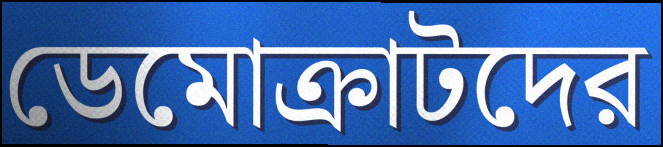
ডেমোক্রাটদের